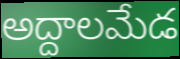
అద్దాలమేడ